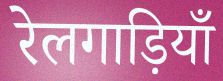
रेलगाड़ियाँ